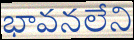
భావనలేని